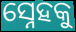
ସ୍ନେହକୁ